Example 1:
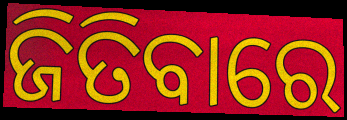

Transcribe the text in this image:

ଜିତିବାରେ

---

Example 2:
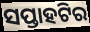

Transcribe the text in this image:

ସପ୍ତାହଟିର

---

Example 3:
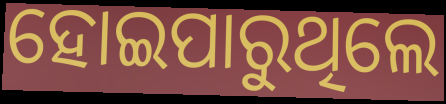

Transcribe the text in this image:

ହୋଇପାରୁଥିଲେ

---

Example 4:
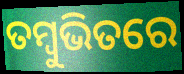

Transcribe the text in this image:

ତମ୍ବୁଭିତରେ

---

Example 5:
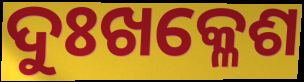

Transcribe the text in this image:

ଦୁଃଖକ୍ଳେଶ